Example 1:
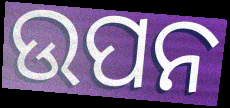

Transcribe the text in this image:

ଉପନ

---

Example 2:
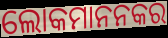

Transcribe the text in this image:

ଲୋକମାନନକର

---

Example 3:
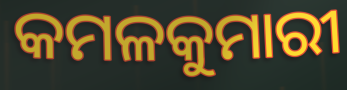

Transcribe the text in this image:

କମଳକୁମାରୀ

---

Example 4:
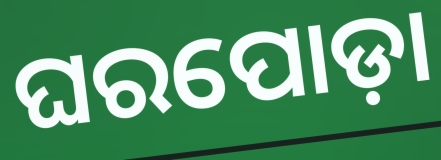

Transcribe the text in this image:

ଘରପୋଡ଼ା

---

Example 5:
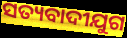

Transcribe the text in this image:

ସତ୍ୟବାଦୀଯୁଗ